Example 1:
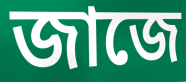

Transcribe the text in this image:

জাজে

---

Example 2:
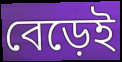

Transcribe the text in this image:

বেড়েই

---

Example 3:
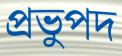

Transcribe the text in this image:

প্রভুপদ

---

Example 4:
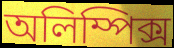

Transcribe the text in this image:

অলিম্পিক্স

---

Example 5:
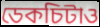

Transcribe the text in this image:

ডেকচিটাও